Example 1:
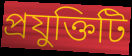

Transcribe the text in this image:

প্রযুক্তিটি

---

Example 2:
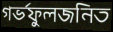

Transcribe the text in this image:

গর্ভফুলজনিত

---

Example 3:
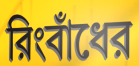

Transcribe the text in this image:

রিংবাঁধের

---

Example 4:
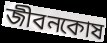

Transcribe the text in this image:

জীবনকোষ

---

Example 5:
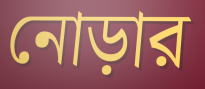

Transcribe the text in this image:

নোড়ার